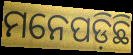
ମନେପଡ଼ିଛି